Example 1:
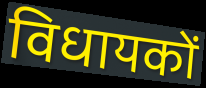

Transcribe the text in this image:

विधायकों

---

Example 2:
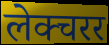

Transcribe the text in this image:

लेक्चरर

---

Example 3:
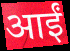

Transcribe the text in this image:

आईं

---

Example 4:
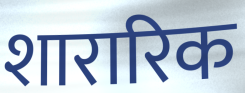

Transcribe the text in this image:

शारारिक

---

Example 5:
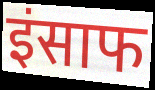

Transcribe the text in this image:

इंसाफ